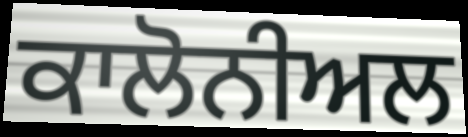
ਕਾਲੋਨੀਅਲ